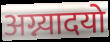
अग्न्यादयो